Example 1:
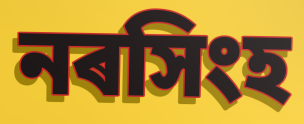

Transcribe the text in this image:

নৰসিংহ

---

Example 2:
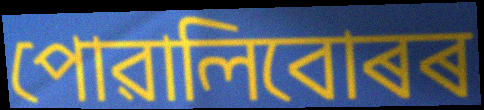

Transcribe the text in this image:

পোৱালিবোৰৰ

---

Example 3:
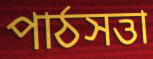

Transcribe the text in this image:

পাঠসত্তা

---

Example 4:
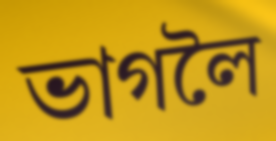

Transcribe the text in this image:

ভাগলৈ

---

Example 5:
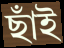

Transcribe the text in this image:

ছাঁই